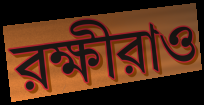
রক্ষীরাও